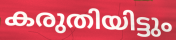
കരുതിയിട്ടും